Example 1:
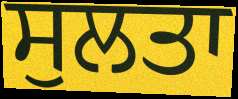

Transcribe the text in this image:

ਸੁਲਤਾ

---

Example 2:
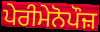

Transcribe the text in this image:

ਪੇਰੀਮੇਨੋਪੌਜ਼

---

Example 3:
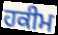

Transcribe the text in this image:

ਹਕੀਮ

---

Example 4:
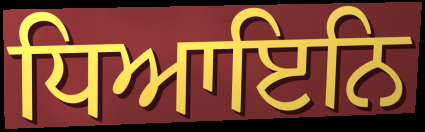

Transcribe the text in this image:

ਧਿਆਇਨਿ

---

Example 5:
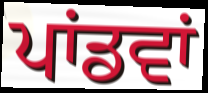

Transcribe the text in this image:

ਪਾਂਡਵਾਂ